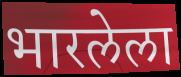
भारलेला